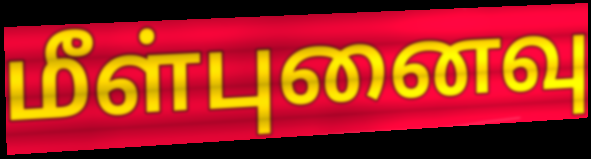
மீள்புனைவு